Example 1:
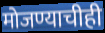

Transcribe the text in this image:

मोजण्याचीही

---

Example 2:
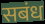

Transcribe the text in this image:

सबंध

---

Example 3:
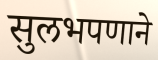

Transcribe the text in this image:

सुलभपणाने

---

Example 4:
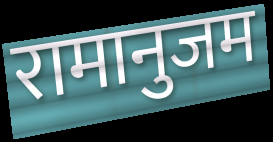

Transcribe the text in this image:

रामानुजम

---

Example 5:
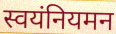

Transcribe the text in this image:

स्वयंनियमन